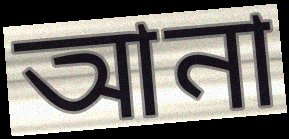
আনা